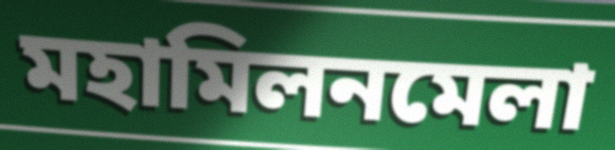
মহামিলনমেলা